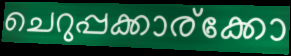
ചെറുപ്പക്കാര്ക്കോ